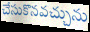
చేసుకొనవచ్చును